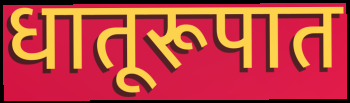
धातूरूपात